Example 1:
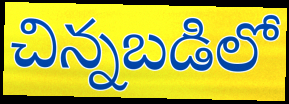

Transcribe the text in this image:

చిన్నబడిలో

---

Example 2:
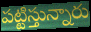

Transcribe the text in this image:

పట్టిస్తున్నారు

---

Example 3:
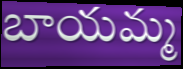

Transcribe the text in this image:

బాయమ్మ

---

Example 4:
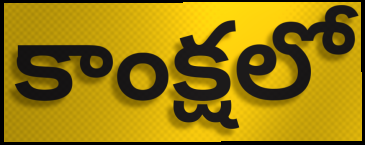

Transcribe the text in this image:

కాంక్షలో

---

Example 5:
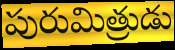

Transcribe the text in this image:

పురుమిత్రుడు